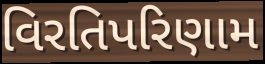
વિરતિપરિણામ